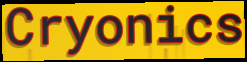
Cryonics